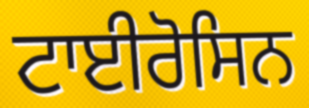
ਟਾਈਰੋਸਿਨ